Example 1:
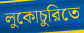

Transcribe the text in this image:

লুকোচুরিতে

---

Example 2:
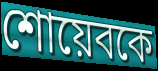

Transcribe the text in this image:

শোয়েবকে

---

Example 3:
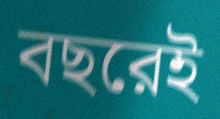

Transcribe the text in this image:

বছরেই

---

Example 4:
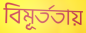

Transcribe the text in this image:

বিমূর্ততায়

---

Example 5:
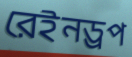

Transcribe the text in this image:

রেইনড্রপ